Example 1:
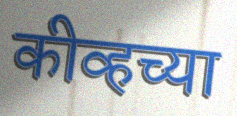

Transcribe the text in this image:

कीव्हच्या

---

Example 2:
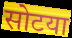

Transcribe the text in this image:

सोटया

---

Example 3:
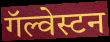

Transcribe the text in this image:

गॅल्वेस्टन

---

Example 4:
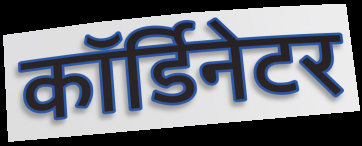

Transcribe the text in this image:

कॉर्डिनेटर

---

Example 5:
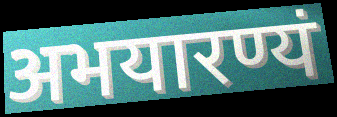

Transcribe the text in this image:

अभयारण्यं